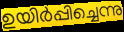
ഉയിർപ്പിച്ചെന്നു